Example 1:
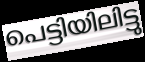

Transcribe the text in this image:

പെട്ടിയിലിട്ടു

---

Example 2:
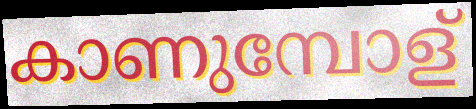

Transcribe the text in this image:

കാണുമ്പോള്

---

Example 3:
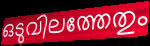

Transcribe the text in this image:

ഒടുവിലത്തേതും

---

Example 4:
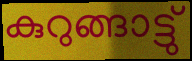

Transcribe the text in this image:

കുറുങ്ങാട്ടു്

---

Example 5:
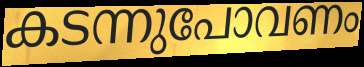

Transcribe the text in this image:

കടന്നുപോവണം